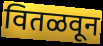
वितळवून